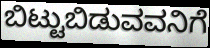
ಬಿಟ್ಟುಬಿಡುವವನಿಗೆ